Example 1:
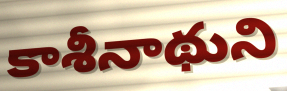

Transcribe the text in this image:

కాశీనాథుని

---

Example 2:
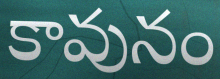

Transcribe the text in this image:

కావునం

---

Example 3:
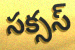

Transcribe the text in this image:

సక్సస్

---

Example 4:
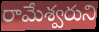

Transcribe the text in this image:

రామేశ్వరుని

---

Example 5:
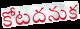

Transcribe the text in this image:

కోటదనుక